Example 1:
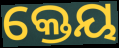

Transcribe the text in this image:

କ୍ତେୟ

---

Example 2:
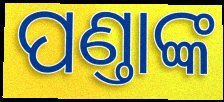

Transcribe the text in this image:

ପଣ୍ତାଙ୍କ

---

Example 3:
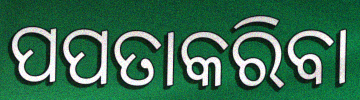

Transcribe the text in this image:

ପପତାକରିବା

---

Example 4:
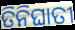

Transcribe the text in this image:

ତିନିଘାତୀ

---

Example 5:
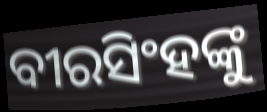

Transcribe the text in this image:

ବୀରସିଂହଙ୍କୁ